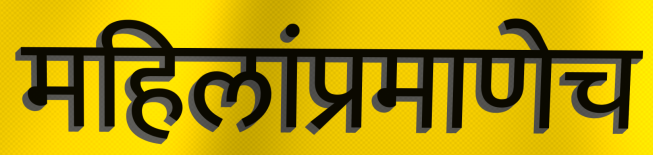
महिलांप्रमाणेच